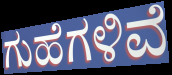
ಗುಹೆಗಳಿವೆ